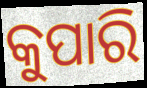
କୁପାରି